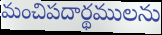
మంచిపదార్థములను